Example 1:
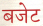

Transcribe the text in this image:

बजेट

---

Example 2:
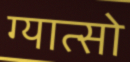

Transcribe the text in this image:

ग्यात्सो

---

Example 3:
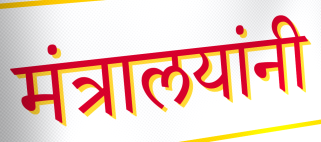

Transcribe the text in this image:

मंत्रालयांनी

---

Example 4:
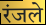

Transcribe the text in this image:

रंजले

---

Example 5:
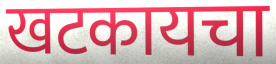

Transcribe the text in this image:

खटकायचा